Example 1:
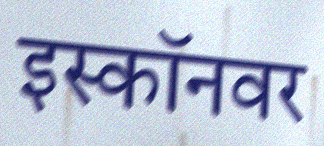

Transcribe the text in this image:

इस्कॉनवर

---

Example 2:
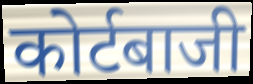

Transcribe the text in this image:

कोर्टबाजी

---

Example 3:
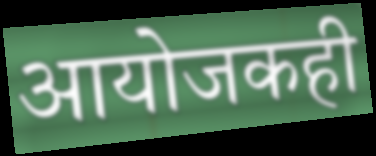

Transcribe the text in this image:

आयोजकही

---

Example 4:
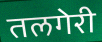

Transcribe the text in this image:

तलगेरी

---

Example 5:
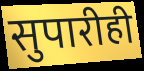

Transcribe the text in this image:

सुपारीही